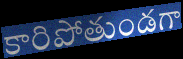
కారిపోతుండగా